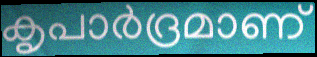
കൃപാർദ്രമാണ്